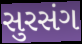
સુરસંગ